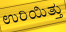
ಉರಿಯಿತ್ತು